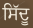
ਸਿੱਦੂ